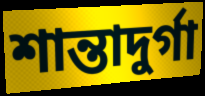
শান্তাদুর্গা